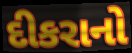
દીકરાનો